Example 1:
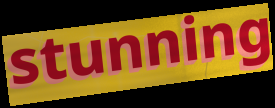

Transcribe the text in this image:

stunning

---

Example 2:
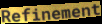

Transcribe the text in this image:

Refinement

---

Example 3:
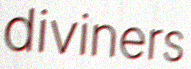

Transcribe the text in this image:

diviners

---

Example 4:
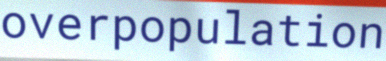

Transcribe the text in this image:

overpopulation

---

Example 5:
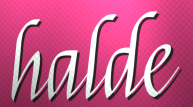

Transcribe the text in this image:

halde